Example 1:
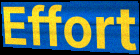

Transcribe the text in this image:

Effort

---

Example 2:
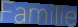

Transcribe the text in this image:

Familie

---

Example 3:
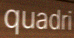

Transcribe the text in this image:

quadri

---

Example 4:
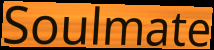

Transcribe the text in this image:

Soulmate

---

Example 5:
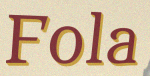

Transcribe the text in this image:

Fola